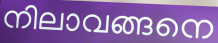
നിലാവങ്ങനെ